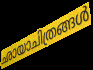
ഛായാചിത്രങ്ങൾ